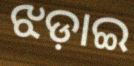
ଝଡ଼ାଇ